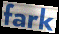
fark